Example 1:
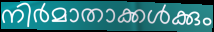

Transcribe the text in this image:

നിർമാതാക്കൾക്കും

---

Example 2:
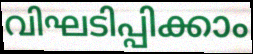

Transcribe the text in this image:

വിഘടിപ്പിക്കാം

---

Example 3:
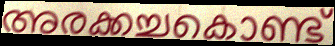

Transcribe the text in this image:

അരക്കച്ചകൊണ്ട്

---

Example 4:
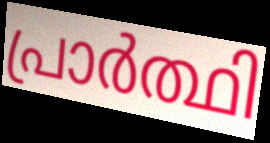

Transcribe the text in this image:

പ്രാർത്ഥി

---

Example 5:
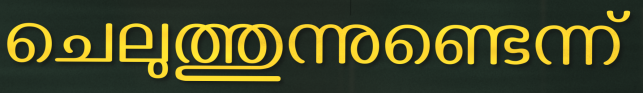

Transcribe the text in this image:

ചെലുത്തുന്നുണ്ടെന്ന്